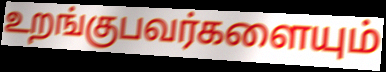
உறங்குபவர்களையும்